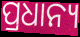
ପ୍ରଧାନ୍ୟ